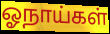
ஓநாய்கள்